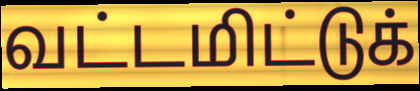
வட்டமிட்டுக்